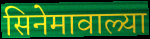
सिनेमावाल्या